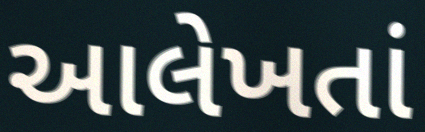
આલેખતાં